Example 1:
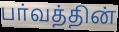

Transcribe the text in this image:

பர்வத்தின்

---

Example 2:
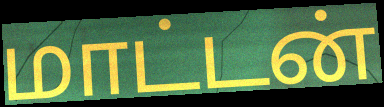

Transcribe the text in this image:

மாட்டன்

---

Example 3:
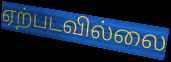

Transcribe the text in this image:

ஏற்படவில்லை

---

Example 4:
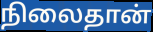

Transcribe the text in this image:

நிலைதான்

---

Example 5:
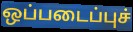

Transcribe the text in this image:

ஒப்படைப்புச்